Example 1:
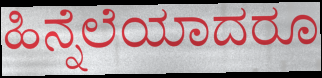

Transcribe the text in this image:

ಹಿನ್ನೆಲೆಯಾದರೂ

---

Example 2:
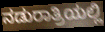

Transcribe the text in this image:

ನಡುರಾತ್ರಿಯಲ್ಲಿ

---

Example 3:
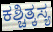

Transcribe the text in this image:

ಕಶ್ಚಿತ್ಕಸ್ಯ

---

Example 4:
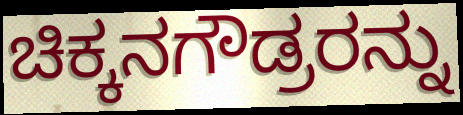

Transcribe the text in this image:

ಚಿಕ್ಕನಗೌಡ್ರರನ್ನು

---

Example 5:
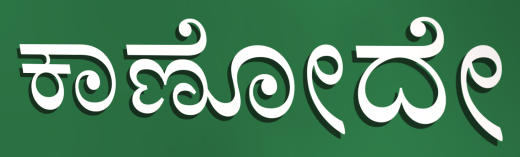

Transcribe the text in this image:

ಕಾಣೋದೇ